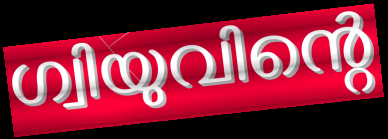
ഗ്വിയുവിന്റെ